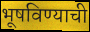
भूषविण्याची